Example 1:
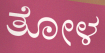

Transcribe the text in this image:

ತೋಳ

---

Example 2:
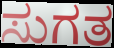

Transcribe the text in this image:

ಸುಗತ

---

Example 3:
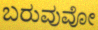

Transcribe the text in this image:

ಬರುವುವೋ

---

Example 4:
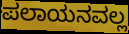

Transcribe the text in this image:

ಪಲಾಯನವಲ್ಲ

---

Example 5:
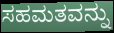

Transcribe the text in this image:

ಸಹಮತವನ್ನು